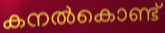
കനൽകൊണ്ട്